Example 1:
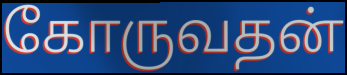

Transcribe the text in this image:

கோருவதன்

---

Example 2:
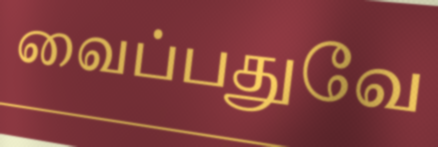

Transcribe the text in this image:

வைப்பதுவே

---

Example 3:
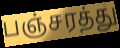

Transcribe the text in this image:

பஞ்சரத்து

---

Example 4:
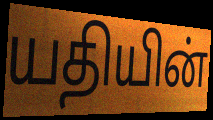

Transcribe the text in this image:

யதியின்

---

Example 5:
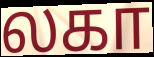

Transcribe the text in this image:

லகா